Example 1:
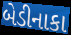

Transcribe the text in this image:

બેડીનાકા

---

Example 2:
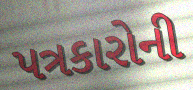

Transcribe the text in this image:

પત્રકારોની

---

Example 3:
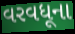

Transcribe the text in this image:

વરવધૂના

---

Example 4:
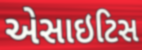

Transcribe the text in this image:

એસાઇટિસ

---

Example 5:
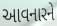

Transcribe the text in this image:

આવનારને